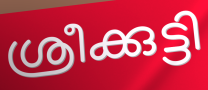
ശ്രീക്കുട്ടി